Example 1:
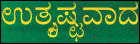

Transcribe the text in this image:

ಉತ್ಕೃಷ್ಟವಾದ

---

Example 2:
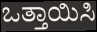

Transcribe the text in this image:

ಒತ್ತಾಯಿಸಿ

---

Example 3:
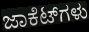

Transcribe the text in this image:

ಜಾಕೆಟ್‌ಗಳು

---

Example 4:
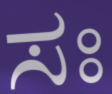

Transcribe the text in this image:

ಸಃ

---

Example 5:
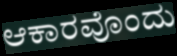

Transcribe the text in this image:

ಆಕಾರವೊಂದು